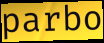
parbo